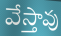
వేస్తావు